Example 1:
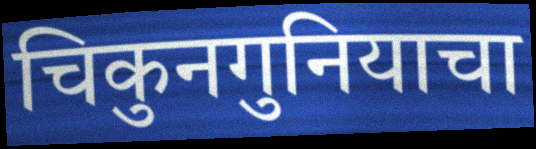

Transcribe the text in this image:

चिकुनगुनियाचा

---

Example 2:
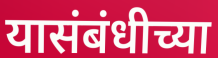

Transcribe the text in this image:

यासंबंधीच्या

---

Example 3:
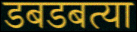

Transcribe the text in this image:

डबडबत्या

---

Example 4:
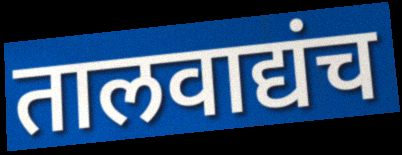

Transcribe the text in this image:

तालवाद्यंच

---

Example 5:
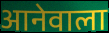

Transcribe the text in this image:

आनेवाला